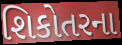
શિકોતરના